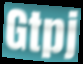
Gtpj